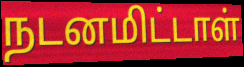
நடனமிட்டாள்